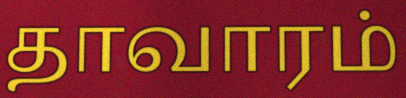
தாவாரம்